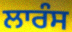
ਲਾਰੰਸ